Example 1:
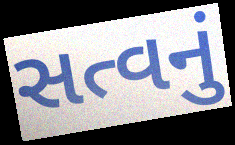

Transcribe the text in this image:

સત્વનું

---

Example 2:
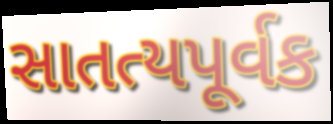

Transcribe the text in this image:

સાતત્યપૂર્વક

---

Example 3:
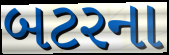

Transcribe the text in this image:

બટરના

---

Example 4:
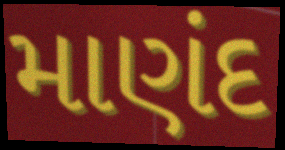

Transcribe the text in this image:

માણંદ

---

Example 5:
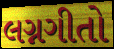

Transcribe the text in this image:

લગ્નગીતો